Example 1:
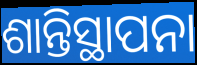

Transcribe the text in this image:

ଶାନ୍ତିସ୍ଥାପନା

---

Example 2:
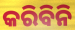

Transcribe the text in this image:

କରିବିନି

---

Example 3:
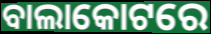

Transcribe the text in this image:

ବାଲାକୋଟରେ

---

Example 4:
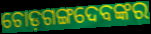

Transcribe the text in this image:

ଚୋଡ଼ଗଙ୍ଗଦେବଙ୍କର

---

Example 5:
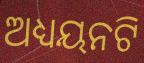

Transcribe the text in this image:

ଅଧ୍ୟୟନଟି